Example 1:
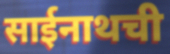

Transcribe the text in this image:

साईनाथची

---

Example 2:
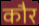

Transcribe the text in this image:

कौर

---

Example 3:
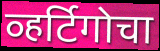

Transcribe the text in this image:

व्हर्टिगोचा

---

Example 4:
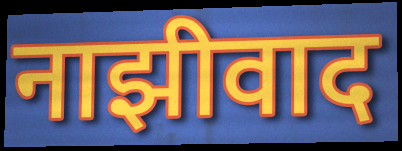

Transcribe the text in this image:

नाझीवाद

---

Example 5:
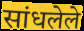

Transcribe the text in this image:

सांधलेले